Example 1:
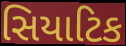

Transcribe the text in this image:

સિયાટિક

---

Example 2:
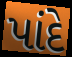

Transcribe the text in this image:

પાંદે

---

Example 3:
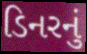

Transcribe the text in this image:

ડિનરનું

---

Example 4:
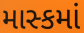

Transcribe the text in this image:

માસ્કમાં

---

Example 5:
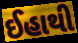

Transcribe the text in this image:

ઈહાથી